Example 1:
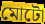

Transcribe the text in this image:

মোটো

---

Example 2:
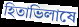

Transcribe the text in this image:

হিতাভিলাষে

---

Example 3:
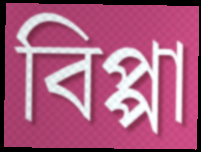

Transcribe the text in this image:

বিপ্পা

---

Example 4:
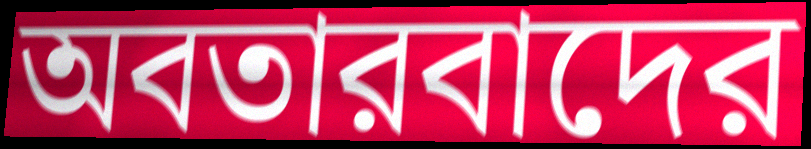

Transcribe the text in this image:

অবতারবাদের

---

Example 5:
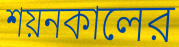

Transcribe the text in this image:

শয়নকালের